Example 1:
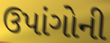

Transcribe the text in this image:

ઉપાંગોની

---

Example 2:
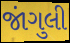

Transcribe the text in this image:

જાંગુલી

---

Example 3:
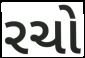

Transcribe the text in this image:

રચો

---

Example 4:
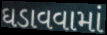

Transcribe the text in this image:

ઘડાવવામાં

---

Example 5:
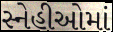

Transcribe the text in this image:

સ્નેહીઓમાં